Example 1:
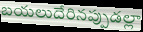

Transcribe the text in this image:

బయలుదేరినప్పుడల్లా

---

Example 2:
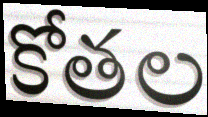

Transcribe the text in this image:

కోతల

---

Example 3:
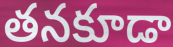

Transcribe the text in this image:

తనకూడా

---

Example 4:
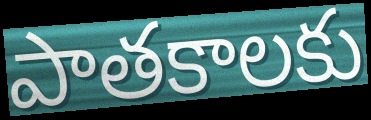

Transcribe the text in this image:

పాతకాలకు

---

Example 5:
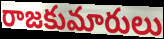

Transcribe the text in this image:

రాజకుమారులు